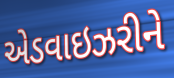
એડવાઇઝરીને